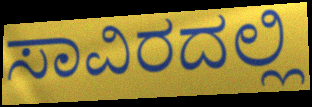
ಸಾವಿರದಲ್ಲಿ